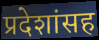
प्रदेशांसह